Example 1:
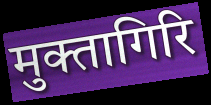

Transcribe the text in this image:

मुक्तागिरि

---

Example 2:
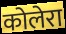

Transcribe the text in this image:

कोलेरा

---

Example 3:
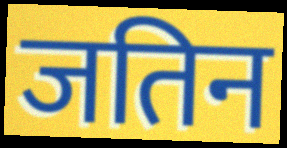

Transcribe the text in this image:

जतिन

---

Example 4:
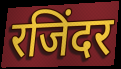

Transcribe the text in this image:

रजिंदर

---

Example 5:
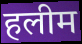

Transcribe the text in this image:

हलीम